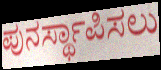
ಪುನರ್ಸ್ಥಾಪಿಸಲು